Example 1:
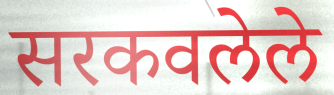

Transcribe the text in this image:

सरकवलेले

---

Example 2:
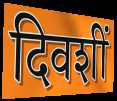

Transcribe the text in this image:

दिवशीं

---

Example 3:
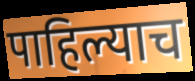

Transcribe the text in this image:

पाहिल्याच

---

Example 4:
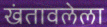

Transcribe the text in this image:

खंतावलेला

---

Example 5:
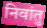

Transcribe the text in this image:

निवांतु